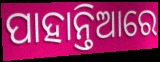
ପାହାନ୍ତିଆରେ